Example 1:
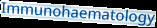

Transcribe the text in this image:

Immunohaematology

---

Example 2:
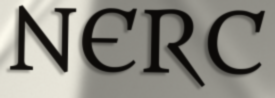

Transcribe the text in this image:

NERC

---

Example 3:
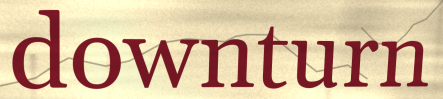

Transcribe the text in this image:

downturn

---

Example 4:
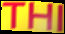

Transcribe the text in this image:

THI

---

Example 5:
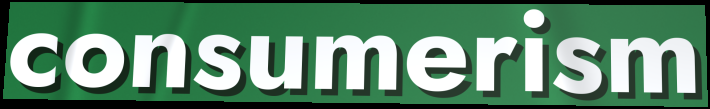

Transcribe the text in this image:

consumerism